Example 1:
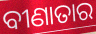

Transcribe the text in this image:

ବୀଣାତାର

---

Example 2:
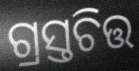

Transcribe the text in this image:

ଗ୍ରସ୍ତଚିତ୍ତ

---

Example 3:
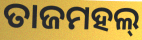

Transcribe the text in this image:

ତାଜମହଲ୍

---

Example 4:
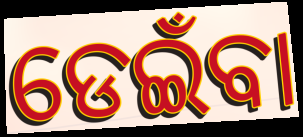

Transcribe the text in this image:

ଡେଇଁବା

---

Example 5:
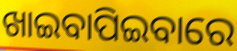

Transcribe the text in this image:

ଖାଇବାପିଇବାରେ